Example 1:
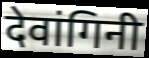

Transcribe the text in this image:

देवांगिनी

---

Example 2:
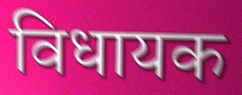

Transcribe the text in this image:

विधायक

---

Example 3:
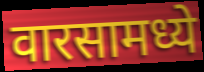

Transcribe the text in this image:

वारसामध्ये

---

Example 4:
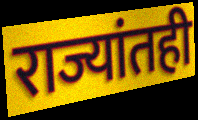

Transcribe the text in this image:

राज्यांतही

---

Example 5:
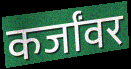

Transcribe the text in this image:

कर्जांवर